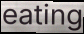
eating